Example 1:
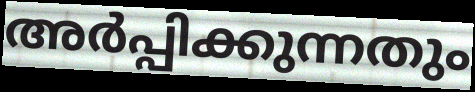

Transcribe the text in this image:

അർപ്പിക്കുന്നതും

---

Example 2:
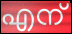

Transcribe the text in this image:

എന്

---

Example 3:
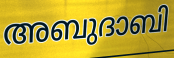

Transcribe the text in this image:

അബുദാബി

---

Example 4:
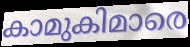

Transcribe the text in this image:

കാമുകിമാരെ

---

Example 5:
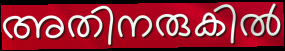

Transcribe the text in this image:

അതിനരുകിൽ